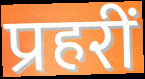
प्रहरीं